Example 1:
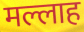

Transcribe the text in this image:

मल्‍लाह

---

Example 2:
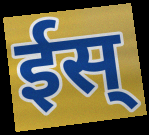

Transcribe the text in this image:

ईस्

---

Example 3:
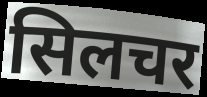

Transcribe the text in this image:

सिलचर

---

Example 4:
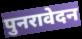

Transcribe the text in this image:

पुनरावेदन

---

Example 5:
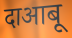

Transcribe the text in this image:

दाआबू